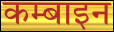
कम्बाइन